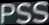
PSS